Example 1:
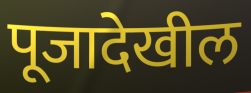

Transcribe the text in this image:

पूजादेखील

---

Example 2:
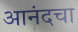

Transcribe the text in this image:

आनंदचा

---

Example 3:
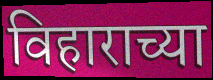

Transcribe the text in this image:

विहाराच्या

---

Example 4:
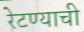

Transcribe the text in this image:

रेटण्याची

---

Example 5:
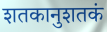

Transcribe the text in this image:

शतकानुशतकं